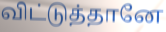
விட்டுத்தானே